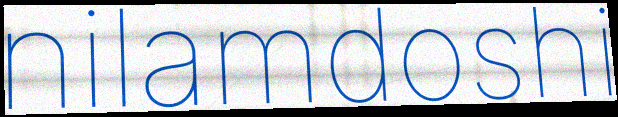
nilamdoshi